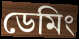
ডেমিং